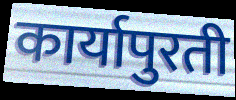
कार्यापुरती